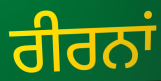
ਰੀਰਨਾਂ